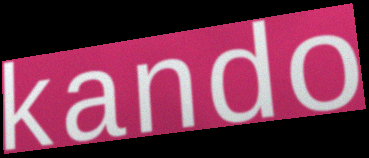
kando